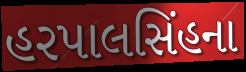
હરપાલસિંહના